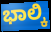
ಭಾಲ್ಕಿ